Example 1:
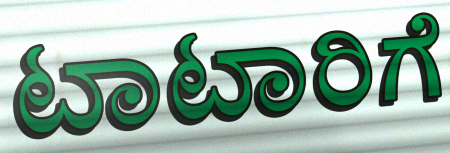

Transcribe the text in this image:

ಟಾಟಾರಿಗೆ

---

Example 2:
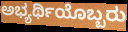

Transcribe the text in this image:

ಅಭ್ಯರ್ಥಿಯೊಬ್ಬರು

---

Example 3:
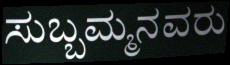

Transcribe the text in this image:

ಸುಬ್ಬಮ್ಮನವರು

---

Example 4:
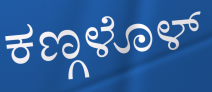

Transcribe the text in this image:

ಕಣ್ಗಳೊಳ್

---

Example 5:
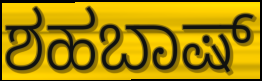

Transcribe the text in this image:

ಶಹಬಾಷ್